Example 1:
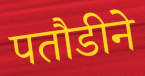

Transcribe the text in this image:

पतौडीने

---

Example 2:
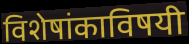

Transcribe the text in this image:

विशेषांकाविषयी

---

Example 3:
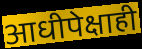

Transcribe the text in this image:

आधीपेक्षाही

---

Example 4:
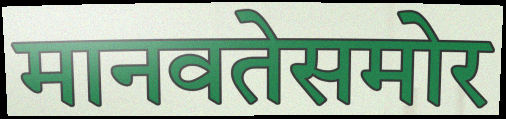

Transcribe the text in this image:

मानवतेसमोर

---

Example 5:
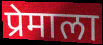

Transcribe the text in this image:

प्रेमाला